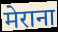
मेराना